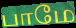
பாமே